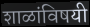
शाळांविषयी